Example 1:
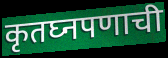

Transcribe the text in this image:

कृतघ्नपणाची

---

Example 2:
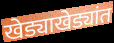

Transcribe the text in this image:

खेड्याखेड्यांत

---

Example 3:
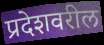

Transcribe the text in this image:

प्रदेशवरील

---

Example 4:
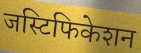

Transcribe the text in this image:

जस्टिफिकेशन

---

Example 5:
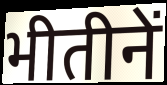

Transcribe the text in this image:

भीतीनें